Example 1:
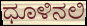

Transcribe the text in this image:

ಧೂಳಿನಲಿ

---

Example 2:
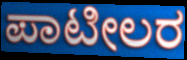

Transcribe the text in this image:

ಪಾಟೀಲರ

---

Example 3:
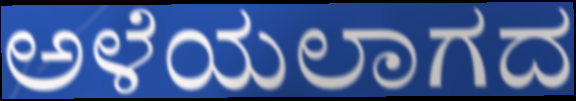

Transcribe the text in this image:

ಅಳೆಯಲಾಗದ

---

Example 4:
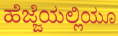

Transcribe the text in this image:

ಹೆಜ್ಜೆಯಲ್ಲಿಯೂ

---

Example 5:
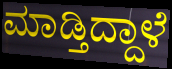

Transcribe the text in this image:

ಮಾಡ್ತಿದ್ದಾಳೆ